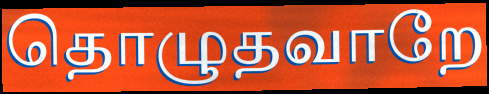
தொழுதவாறே